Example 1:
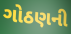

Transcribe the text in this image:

ગોઠણની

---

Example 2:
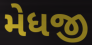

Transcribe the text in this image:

મેધજી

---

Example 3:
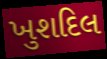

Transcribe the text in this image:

ખુશદિલ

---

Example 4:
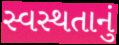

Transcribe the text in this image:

સ્વસ્થતાનું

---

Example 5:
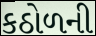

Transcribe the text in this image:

કઠોળની